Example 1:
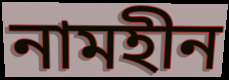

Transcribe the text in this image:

নামহীন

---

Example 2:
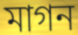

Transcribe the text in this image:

মাগন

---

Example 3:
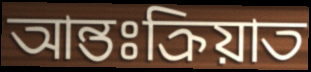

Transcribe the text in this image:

আন্তঃক্ৰিয়াত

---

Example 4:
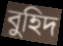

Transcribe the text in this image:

বুহিদ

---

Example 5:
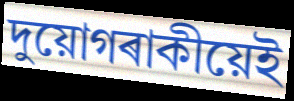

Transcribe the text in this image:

দুয়োগৰাকীয়েই